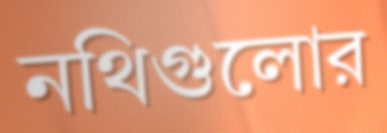
নথিগুলোর